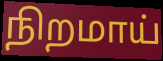
நிறமாய்